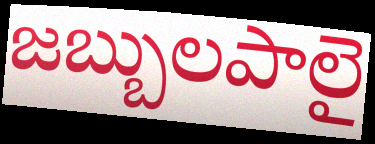
జబ్బులపాలై